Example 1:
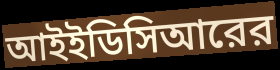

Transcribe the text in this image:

আইইডিসিআরের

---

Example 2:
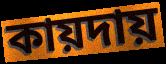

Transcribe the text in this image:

কায়দায়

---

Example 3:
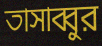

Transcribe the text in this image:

তাসাব্বুর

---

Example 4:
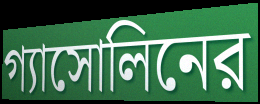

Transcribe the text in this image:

গ্যাসোলিনের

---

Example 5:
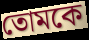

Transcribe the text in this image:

তোমকে